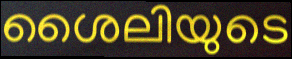
ശൈലിയുടെ